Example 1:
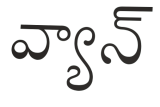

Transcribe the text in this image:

వ్యాన్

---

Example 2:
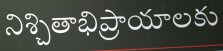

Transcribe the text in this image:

నిశ్చితాభిప్రాయాలకు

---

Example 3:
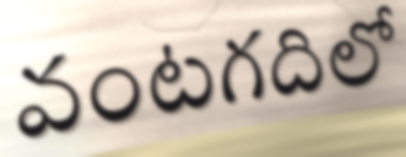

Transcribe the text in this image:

వంటగదిలో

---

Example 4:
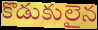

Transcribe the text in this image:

కొడుకులైన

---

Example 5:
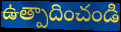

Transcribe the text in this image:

ఉత్పాదించండి